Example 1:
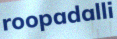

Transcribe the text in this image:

roopadalli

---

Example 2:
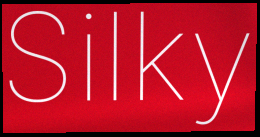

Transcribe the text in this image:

Silky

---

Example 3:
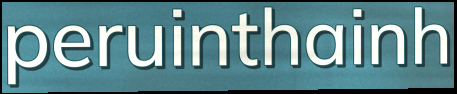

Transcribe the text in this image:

peruinthainh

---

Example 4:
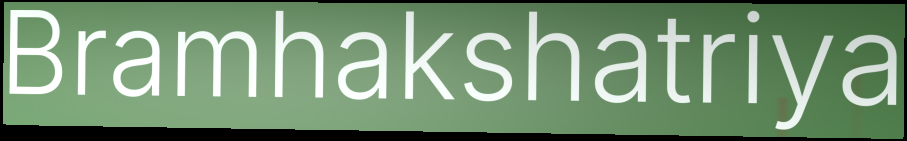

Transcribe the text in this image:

Bramhakshatriya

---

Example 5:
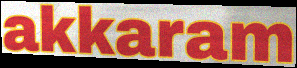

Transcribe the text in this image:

akkaram